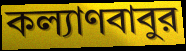
কল্যাণবাবুর